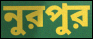
নুরপুর